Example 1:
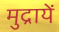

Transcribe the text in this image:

मुद्रायें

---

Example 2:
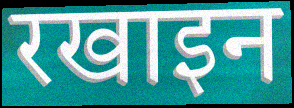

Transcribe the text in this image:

रखाइन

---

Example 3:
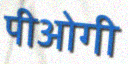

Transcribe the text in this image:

पीओगी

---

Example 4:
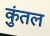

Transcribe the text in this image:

कुंतल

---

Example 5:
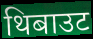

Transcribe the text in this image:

थिबाउट